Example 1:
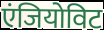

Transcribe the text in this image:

एंजियोविट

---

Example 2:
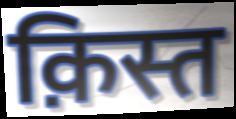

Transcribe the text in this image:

क़िस्त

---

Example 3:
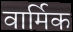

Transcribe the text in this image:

वार्मिक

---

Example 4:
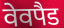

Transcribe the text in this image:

वेवपैड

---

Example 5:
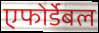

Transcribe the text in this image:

एफोर्डेबल